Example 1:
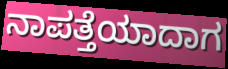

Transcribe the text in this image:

ನಾಪತ್ತೆಯಾದಾಗ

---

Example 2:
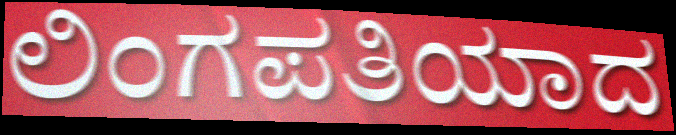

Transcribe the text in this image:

ಲಿಂಗಪತಿಯಾದ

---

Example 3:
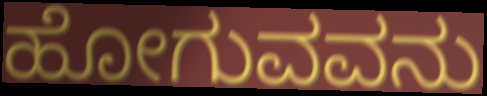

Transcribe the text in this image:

ಹೋಗುವವನು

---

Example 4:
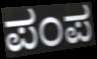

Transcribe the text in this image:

ಪಂಪ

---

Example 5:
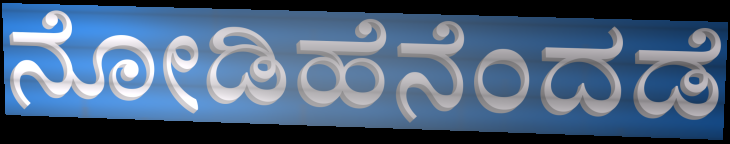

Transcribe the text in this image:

ನೋಡಿಹೆನೆಂದಡೆ